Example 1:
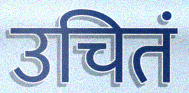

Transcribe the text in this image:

उचितं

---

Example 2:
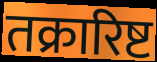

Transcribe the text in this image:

तक्रारिष्ट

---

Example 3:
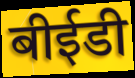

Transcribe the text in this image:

बीईडी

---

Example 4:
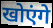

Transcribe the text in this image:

खोएंगे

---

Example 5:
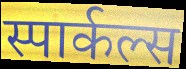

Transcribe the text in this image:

स्पार्कल्स